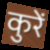
कुरें